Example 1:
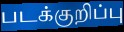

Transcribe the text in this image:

படக்குறிப்பு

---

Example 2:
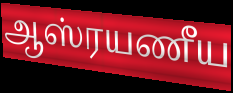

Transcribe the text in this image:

ஆஸ்ரயணீய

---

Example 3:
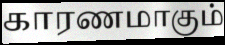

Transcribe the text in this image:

காரணமாகும்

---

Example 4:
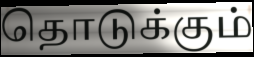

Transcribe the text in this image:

தொடுக்கும்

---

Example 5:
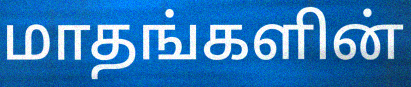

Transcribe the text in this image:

மாதங்களின்